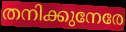
തനിക്കുനേരേ